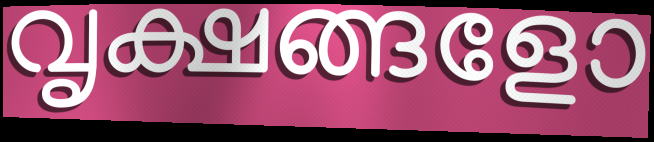
വൃക്ഷങ്ങളോ